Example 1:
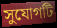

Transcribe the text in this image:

সুযোগটি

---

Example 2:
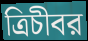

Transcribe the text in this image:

ত্রিচীবর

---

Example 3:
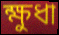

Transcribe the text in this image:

ক্ষুধা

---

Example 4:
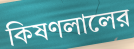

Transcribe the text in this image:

কিষণলালের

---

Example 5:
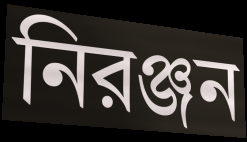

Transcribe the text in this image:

নিরঞ্জন